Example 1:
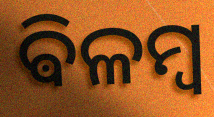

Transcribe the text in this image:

ଵିଳମ୍ବ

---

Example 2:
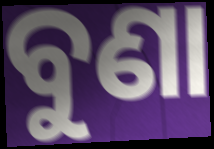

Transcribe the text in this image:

ବୁଣା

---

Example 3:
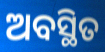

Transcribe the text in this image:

ଅବସ୍ଥିତ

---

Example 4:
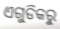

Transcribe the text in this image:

ଏଗୁଡିକରୁ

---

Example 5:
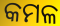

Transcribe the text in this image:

କମଳ